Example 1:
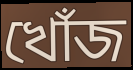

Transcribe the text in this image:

খোঁজ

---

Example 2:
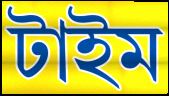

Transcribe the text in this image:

টাইম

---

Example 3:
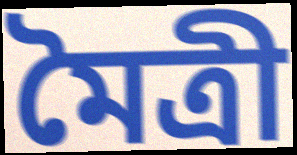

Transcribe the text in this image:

মৈত্ৰী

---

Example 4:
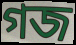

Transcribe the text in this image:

গজ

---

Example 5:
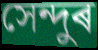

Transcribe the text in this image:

সেন্দুৰ